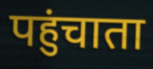
पहुंचाता